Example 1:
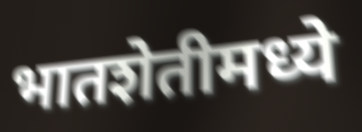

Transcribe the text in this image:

भातशेतीमध्ये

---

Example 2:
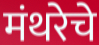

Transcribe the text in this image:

मंथरेचे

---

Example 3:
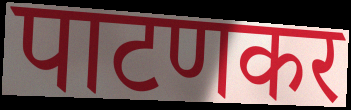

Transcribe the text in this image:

पाटणकर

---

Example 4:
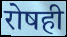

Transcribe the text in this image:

रोषही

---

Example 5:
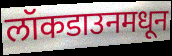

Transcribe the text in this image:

लॉकडाउनमधून